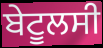
ਬੇਟੂਲਸੀ